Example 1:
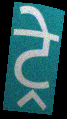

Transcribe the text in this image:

ट्रे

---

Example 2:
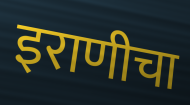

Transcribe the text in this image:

इराणीचा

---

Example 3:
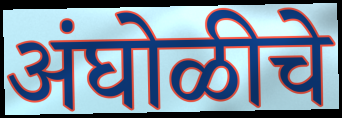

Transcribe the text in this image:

अंघोळीचे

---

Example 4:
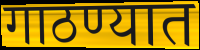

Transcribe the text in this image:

गाठण्यात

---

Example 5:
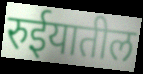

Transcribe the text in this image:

रुईयातील